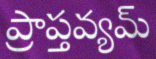
ప్రాప్తవ్యమ్